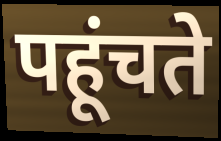
पहूंचते